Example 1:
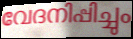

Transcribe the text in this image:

വേദനിപ്പിച്ചും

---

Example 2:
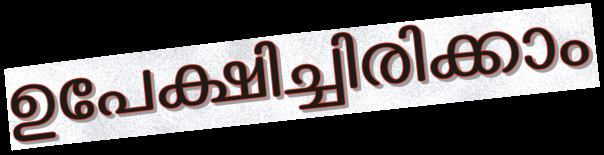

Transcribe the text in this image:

ഉപേക്ഷിച്ചിരിക്കാം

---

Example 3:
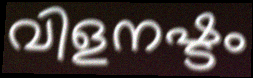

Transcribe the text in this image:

വിളനഷ്ടം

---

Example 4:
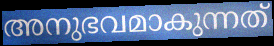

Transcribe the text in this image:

അനുഭവമാകുന്നത്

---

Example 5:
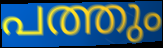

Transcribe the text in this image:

പത്തും